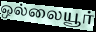
ஒல்லையூர்